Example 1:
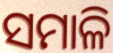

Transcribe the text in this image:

ସମାଳି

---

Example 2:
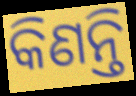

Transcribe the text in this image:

କିଣନ୍ତି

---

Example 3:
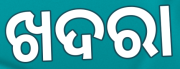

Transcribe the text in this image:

ଖଦରା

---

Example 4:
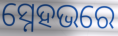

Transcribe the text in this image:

ସ୍ନେହଭରେ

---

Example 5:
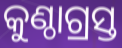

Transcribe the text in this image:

କୁଣ୍ଠାଗ୍ରସ୍ତ